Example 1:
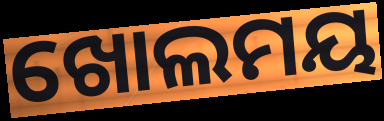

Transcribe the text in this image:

ଖୋଲମୟ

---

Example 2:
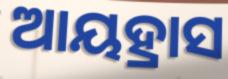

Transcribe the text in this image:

ଆୟହ୍ରାସ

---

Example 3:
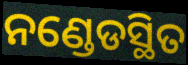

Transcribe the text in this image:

ନଣ୍ଡେଡସ୍ଥିତ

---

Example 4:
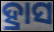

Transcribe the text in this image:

ହ୍ରାସ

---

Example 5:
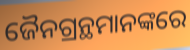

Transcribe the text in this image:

ଜୈନଗ୍ରନ୍ଥମାନଙ୍କରେ